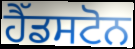
ਹੈੱਡਸਟੋਨ